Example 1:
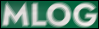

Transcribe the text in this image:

MLOG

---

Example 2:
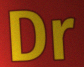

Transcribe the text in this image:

Dr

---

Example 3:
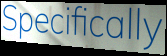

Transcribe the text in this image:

Specifically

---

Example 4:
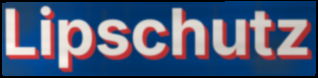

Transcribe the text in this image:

Lipschutz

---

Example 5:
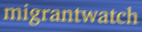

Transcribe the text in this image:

migrantwatch